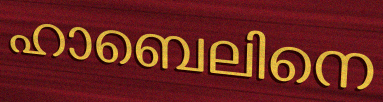
ഹാബെലിനെ